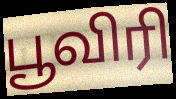
பூவிரி